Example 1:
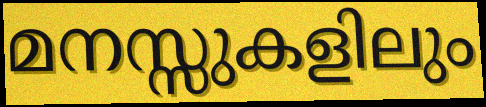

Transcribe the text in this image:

മനസ്സുകളിലും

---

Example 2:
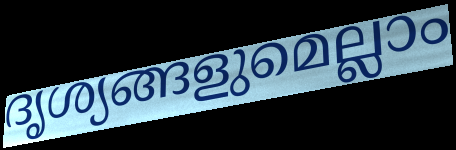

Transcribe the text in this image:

ദൃശ്യങ്ങളുമെല്ലാം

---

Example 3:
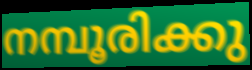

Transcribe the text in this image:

നമ്പൂരിക്കു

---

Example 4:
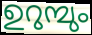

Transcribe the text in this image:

ഉറുമ്പും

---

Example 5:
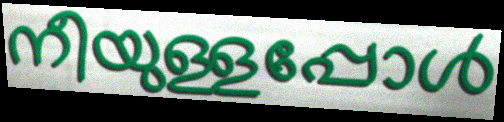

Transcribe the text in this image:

നീയുള്ളപ്പോൾ